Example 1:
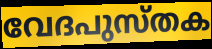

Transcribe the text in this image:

വേദപുസ്തക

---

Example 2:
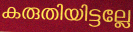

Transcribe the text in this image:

കരുതിയിട്ടല്ലേ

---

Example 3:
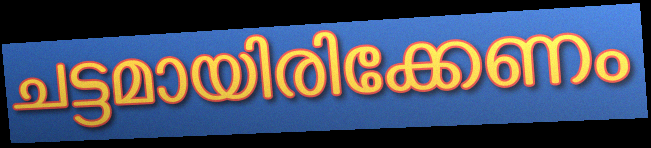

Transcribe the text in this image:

ചട്ടമായിരിക്കേണം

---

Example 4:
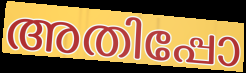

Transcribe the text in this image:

അതിപ്പോ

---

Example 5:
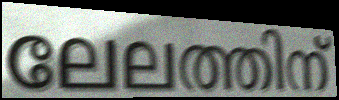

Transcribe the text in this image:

ലേലത്തിന്